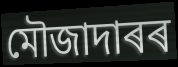
মৌজাদাৰৰ